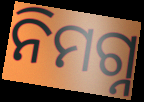
ନିମଗ୍ନ